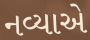
નવ્યાએ